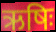
ऋषिः